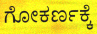
ಗೋಕರ್ಣಕ್ಕೆ